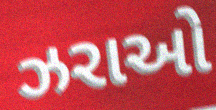
ઝરાઓ